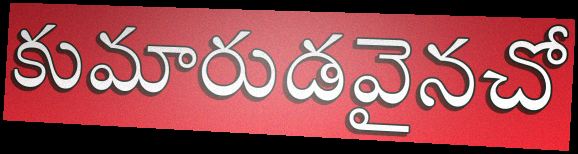
కుమారుడవైనచో